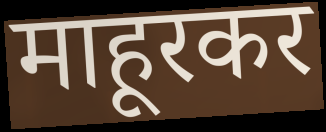
माहूरकर